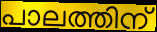
പാലത്തിന്